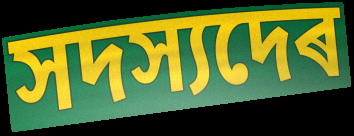
সদস্যদেৰ